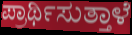
ಪ್ರಾರ್ಥಿಸುತ್ತಾಳೆ